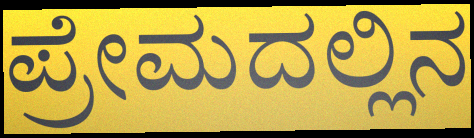
ಪ್ರೇಮದಲ್ಲಿನ